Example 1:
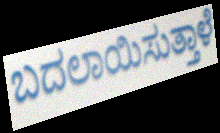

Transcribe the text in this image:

ಬದಲಾಯಿಸುತ್ತಾಳೆ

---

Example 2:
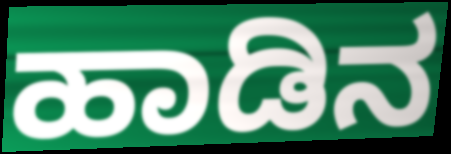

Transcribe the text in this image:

ಹಾಡಿನ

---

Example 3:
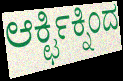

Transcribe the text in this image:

ಆರ್ಕ್ಟಿಕ್ನಿಂದ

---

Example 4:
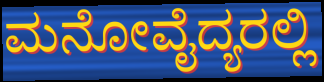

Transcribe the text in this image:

ಮನೋವೈದ್ಯರಲ್ಲಿ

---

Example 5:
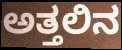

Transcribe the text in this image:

ಅತ್ತಲಿನ